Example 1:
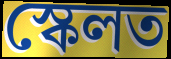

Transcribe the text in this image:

স্কেলত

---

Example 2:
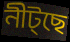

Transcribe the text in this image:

নীট্‌ছে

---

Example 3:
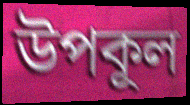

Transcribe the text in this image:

উপকূল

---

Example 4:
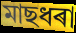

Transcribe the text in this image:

মাছধৰা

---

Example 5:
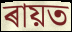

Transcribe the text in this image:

ৰায়ত